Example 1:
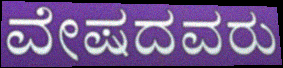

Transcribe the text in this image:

ವೇಷದವರು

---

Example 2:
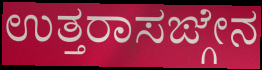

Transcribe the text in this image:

ಉತ್ತರಾಸಙ್ಗೇನ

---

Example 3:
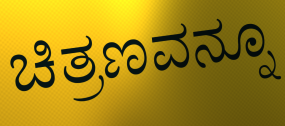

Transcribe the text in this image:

ಚಿತ್ರಣವನ್ನೂ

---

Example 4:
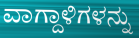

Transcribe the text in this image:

ವಾಗ್ದಾಳಿಗಳನ್ನು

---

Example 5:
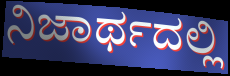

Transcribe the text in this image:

ನಿಜಾರ್ಥದಲ್ಲಿ